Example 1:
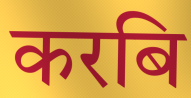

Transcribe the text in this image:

करबि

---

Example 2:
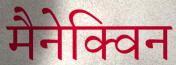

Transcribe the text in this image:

मैनेक्विन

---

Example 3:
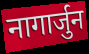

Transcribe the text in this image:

नागार्जुन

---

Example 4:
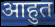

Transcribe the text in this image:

आहुत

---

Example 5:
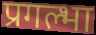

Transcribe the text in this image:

प्रगल्भा